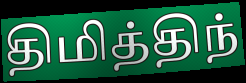
திமித்திந்